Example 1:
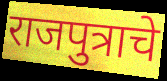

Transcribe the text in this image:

राजपुत्राचे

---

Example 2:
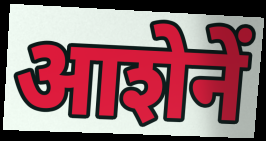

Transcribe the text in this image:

आशेनें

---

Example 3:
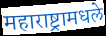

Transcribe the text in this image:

महाराष्ट्रामधले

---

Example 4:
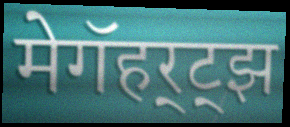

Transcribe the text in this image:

मेगॅहर्ट्‌झ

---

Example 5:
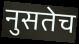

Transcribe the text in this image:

नुसतेच